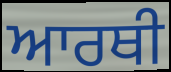
ਆਰਥੀ